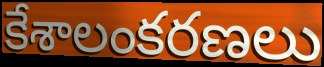
కేశాలంకరణలు